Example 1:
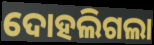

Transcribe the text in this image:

ଦୋହଲିଗଲା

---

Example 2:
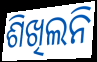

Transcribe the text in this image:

ଶିଖିଲନି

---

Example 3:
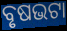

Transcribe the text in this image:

ବୃଷଭଟା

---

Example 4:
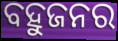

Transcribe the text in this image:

ବହୁଜନର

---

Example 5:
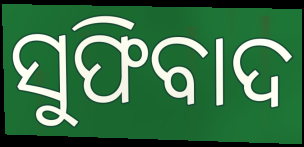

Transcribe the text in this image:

ସୁଫିବାଦ